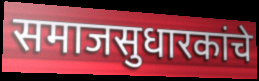
समाजसुधारकांचे